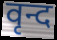
वृन्द